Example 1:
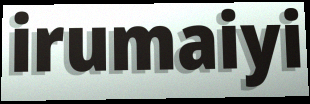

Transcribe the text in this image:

irumaiyi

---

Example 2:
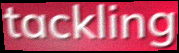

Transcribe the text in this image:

tackling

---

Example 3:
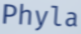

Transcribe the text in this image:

Phyla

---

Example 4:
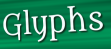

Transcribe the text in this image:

Glyphs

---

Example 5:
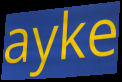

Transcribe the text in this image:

ayke